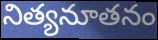
నిత్యనూతనం